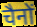
चैनों